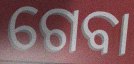
ଗେବା